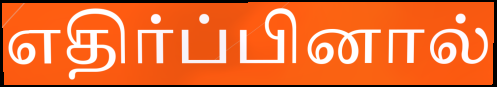
எதிர்ப்பினால்